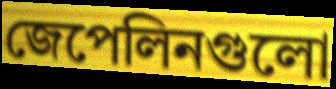
জেপেলিনগুলো